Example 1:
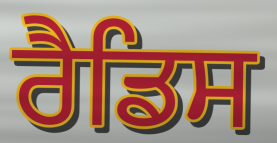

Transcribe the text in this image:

ਰੈਡਿਸ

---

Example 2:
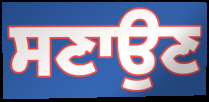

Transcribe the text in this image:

ਸਣਾਉਣ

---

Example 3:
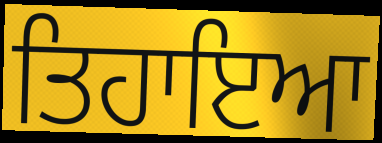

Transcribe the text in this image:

ਤਿਹਾਇਆ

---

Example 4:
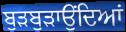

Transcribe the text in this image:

ਬੁੜਬੁੜਾਉਂਦਿਆਂ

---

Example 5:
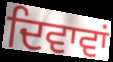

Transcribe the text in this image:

ਦਿਵਾਵਾਂ